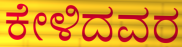
ಕೇಳಿದವರ